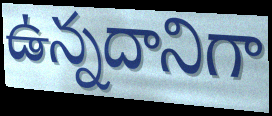
ఉన్నదానిగా